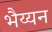
भैय्यन